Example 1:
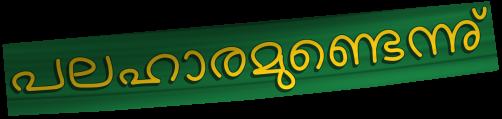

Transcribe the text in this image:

പലഹാരമുണ്ടെന്നു്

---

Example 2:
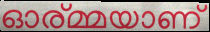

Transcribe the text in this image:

ഓര്മ്മയാണ്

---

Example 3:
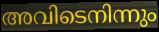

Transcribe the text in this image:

അവിടെനിന്നും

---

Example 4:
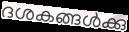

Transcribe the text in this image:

ദശകങ്ങൾക്കു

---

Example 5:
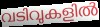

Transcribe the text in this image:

വടിവുകളിൽ